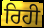
ਰਿਹੀ